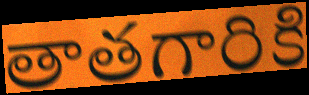
తాతగారికి